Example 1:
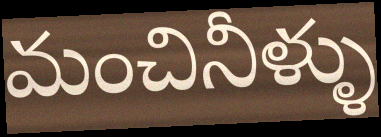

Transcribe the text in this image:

మంచినీళ్ళు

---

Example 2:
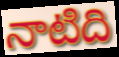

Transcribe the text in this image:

నాటిది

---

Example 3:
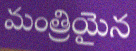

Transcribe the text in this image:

మంత్రియైన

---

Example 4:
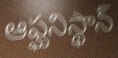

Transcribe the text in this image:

ఆఫ్ఘనిస్థాన్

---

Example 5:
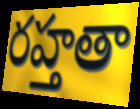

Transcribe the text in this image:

రహ్తతా